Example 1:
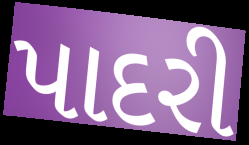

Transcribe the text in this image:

પાદરી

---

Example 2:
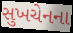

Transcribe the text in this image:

સુખચેનના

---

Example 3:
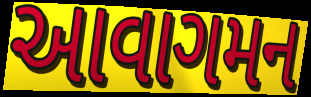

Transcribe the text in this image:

આવાગમન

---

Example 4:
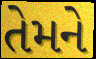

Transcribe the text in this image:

તેમને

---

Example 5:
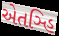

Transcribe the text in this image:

એતઞ્હિ